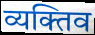
व्यक्तिव